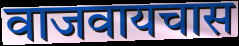
वाजवायचास